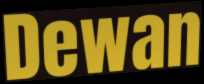
Dewan